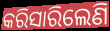
କରିସାରିଲେଣି